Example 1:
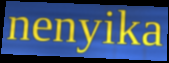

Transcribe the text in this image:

nenyika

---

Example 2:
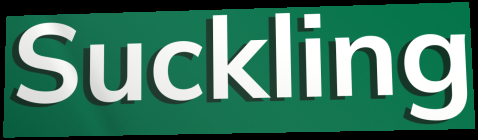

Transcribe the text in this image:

Suckling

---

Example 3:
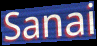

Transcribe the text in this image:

Sanai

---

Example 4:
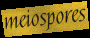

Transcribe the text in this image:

meiospores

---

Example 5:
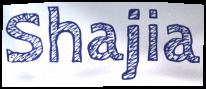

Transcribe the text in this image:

Shajia